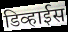
डिव्हाईस